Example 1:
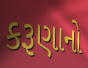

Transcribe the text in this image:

કરૂણાનો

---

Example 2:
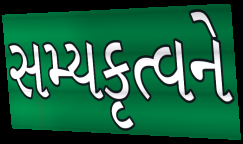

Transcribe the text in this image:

સમ્યકૃત્વને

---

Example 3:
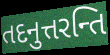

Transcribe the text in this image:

તદનુત્તરન્તિ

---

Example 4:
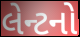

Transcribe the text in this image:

લેન્ટનો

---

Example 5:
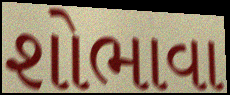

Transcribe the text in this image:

શોભાવા